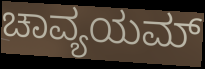
ಚಾವ್ಯಯಮ್